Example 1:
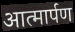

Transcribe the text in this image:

आत्मार्पण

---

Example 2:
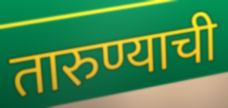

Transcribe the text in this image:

तारुण्याची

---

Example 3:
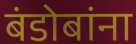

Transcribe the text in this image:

बंडोबांना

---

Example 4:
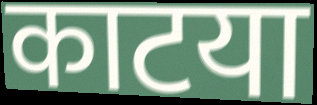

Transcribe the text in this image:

काटया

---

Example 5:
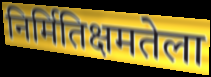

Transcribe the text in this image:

निर्मितिक्षमतेला